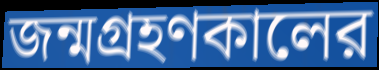
জন্মগ্রহণকালের